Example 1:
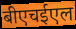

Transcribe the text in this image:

बीएचईएल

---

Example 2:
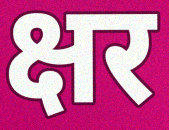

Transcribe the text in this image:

क्षर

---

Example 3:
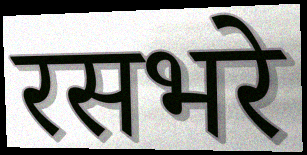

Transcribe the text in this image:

रसभरे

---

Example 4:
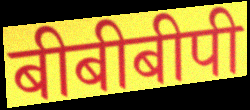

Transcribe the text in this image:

बीबीबीपी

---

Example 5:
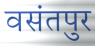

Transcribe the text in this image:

वसंतपुर